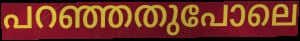
പറഞ്ഞതുപോലെ